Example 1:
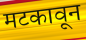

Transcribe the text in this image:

मटकावून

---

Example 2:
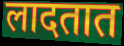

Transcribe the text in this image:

लादतात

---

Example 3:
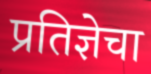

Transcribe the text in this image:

प्रतिज्ञेचा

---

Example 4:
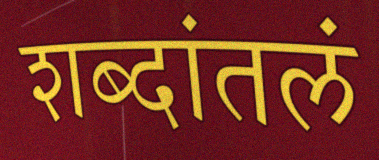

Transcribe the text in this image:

शब्दांतलं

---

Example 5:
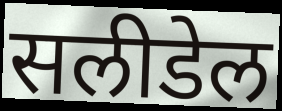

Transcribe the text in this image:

सलीडेल